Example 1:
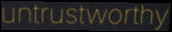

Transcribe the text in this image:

untrustworthy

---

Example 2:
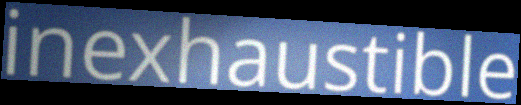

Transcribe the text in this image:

inexhaustible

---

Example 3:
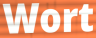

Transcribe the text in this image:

Wort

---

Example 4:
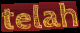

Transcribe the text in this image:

telah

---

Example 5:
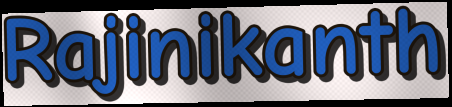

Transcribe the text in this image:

Rajinikanth